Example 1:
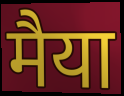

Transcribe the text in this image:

मैया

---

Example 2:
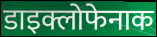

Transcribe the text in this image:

डाइक्लोफेनाक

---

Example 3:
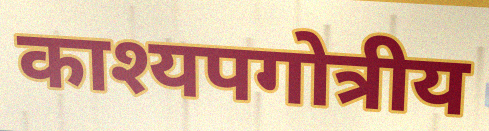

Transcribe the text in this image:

काश्यपगोत्रीय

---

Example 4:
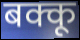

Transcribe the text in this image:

बक्कू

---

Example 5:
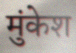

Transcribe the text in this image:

मुंकेश